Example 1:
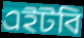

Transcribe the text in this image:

এইটবি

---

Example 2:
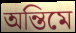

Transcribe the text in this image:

অন্তিমে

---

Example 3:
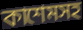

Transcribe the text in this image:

কাশেমসহ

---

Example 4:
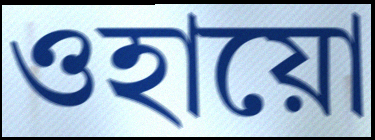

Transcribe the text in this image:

ওহায়ো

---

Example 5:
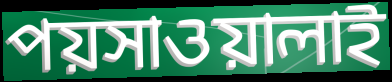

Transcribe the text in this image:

পয়সাওয়ালাই